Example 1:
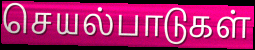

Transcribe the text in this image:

செயல்பாடுகள்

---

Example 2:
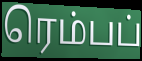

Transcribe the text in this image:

ரெம்பப்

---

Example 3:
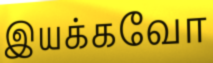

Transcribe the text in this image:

இயக்கவோ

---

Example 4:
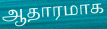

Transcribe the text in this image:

ஆதாரமாக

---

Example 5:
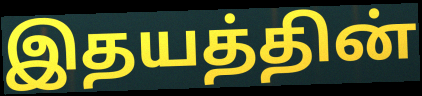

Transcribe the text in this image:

இதயத்தின்